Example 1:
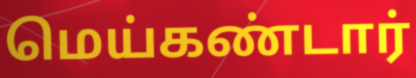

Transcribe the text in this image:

மெய்கண்டார்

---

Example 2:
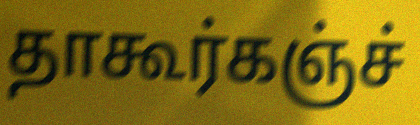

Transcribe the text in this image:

தாகூர்கஞ்ச்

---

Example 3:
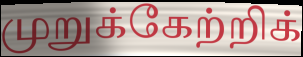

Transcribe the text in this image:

முறுக்கேற்றிக்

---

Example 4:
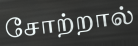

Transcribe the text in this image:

சோற்றால்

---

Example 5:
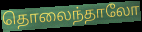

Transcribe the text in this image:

தொலைந்தாலோ